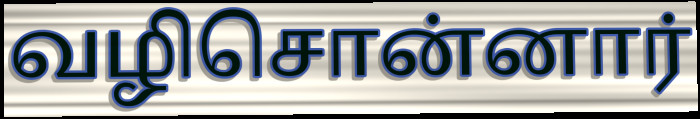
வழிசொன்னார்